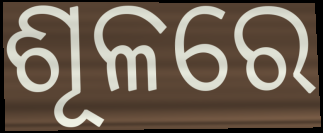
ଶୂଳରେ